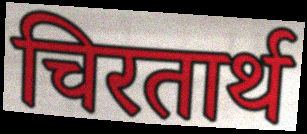
चिरतार्थ